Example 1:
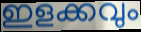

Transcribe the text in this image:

ഇളക്കവും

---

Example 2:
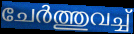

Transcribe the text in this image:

ചേർത്തുവച്ച്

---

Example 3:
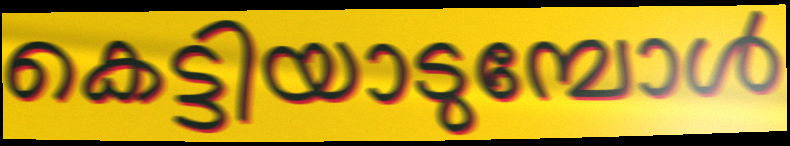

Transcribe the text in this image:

കെട്ടിയാടുമ്പോൾ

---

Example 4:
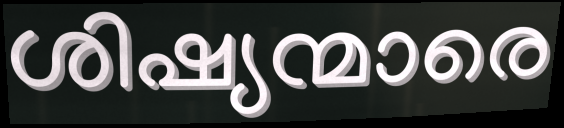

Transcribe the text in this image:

ശിഷ്യന്മാരെ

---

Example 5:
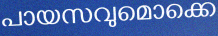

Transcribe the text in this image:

പായസവുമൊക്കെ